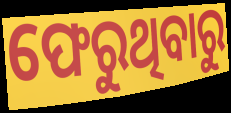
ଫେରୁଥିବାରୁ